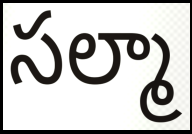
సల్మా